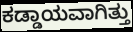
ಕಡ್ಡಾಯವಾಗಿತ್ತು